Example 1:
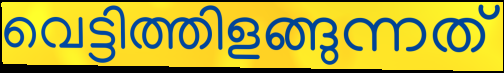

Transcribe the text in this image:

വെട്ടിത്തിളങ്ങുന്നത്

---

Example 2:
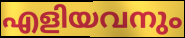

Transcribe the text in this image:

എളിയവനും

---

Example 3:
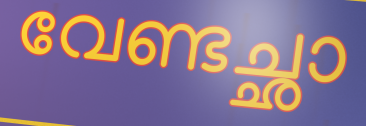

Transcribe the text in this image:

വേണ്ടച്ഛാ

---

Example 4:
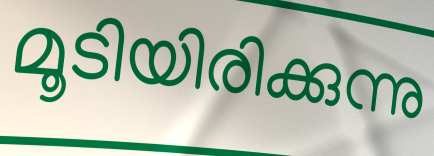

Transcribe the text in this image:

മൂടിയിരിക്കുന്നു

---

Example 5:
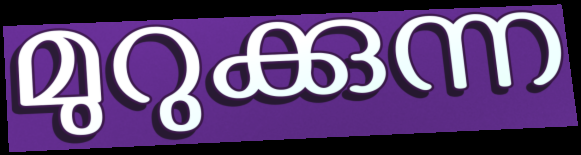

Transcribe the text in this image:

മുറുക്കുന്ന